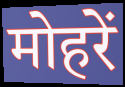
मोहरें